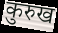
कुरुख